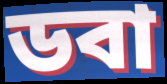
ডবা